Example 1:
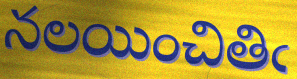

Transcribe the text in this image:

నలయించితిఁ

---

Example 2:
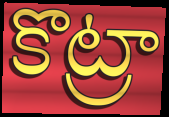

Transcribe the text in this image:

కొట్రా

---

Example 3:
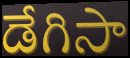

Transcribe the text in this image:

డేగిసా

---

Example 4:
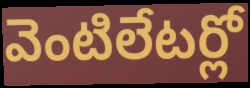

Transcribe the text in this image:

వెంటిలేటర్లో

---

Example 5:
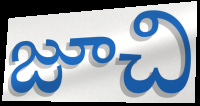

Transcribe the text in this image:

జూచి